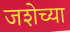
जशेच्या